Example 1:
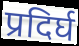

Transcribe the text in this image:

प्रदिर्घ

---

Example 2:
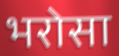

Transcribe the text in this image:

भरोसा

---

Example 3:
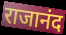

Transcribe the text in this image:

राजानंद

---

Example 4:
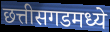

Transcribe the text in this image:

छत्तीसगडमध्ये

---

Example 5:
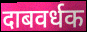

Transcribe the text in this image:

दाबवर्धक